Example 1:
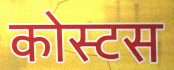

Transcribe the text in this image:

कोस्टस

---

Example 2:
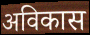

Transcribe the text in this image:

अविकास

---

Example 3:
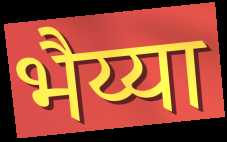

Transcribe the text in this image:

भैय्या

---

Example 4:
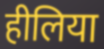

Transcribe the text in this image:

हीलिया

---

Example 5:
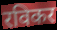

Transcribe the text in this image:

रविकर